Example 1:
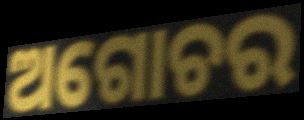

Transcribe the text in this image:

ଅଗୋଚର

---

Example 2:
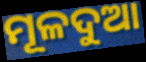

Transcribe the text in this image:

ମୂଳଦୁଆ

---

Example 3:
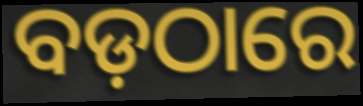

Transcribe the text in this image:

ବଡ଼ଠାରେ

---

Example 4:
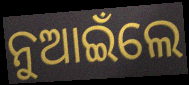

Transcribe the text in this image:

ନୁଆଇଁଲେ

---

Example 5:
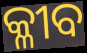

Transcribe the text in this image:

କ୍ଳୀବ